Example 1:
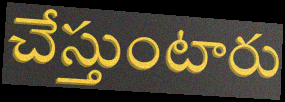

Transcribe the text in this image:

చేస్తుంటారు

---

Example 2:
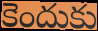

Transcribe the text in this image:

కెందుకు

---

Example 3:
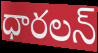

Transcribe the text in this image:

ధారలన్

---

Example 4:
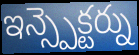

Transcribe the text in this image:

ఇన్స్పెక్టర్ను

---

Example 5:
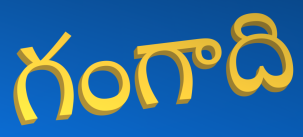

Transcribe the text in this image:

గంగాది